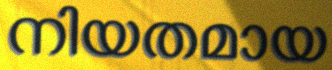
നിയതമായ